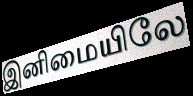
இனிமையிலே